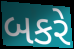
બકરે